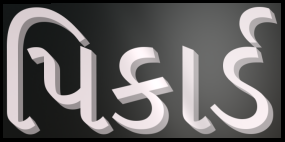
પિકાર્ડ